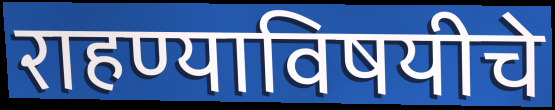
राहण्याविषयीचे